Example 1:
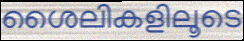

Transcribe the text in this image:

ശൈലികളിലൂടെ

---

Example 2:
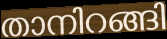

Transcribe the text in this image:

താനിറങ്ങി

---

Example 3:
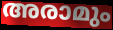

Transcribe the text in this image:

അരാമും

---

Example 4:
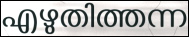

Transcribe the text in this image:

എഴുതിത്തന്ന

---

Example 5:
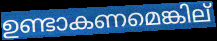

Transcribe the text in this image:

ഉണ്ടാകണമെങ്കില്